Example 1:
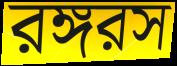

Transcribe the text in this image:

রঙ্গরস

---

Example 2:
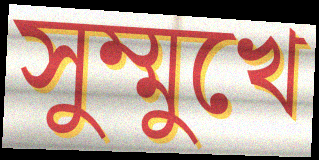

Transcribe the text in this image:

সুম্মুখে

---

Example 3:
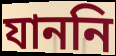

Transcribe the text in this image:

যাননি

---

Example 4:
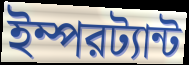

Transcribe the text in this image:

ইম্পরট্যান্ট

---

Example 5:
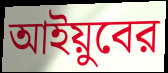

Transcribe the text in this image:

আইয়ুবের